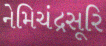
નેમિચંદ્રસૂરિ